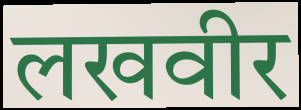
लखवीर